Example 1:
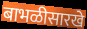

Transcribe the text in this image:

बाभळीसारखे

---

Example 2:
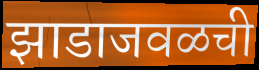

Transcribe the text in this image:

झाडाजवळची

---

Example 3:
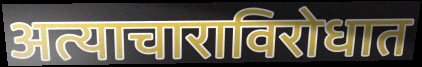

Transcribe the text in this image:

अत्याचाराविरोधात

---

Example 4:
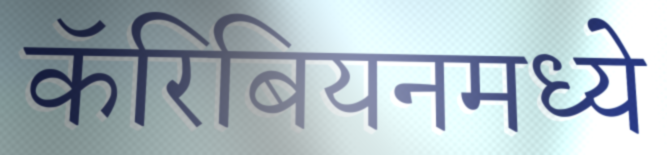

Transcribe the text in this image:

कॅरिबियनमध्ये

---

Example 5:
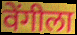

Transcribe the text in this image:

वेंगीला